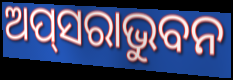
ଅପ୍‍ସରାଭୁବନ